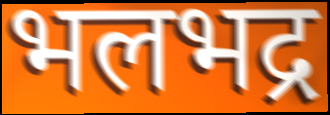
भलभद्र